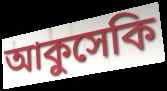
আকুসেকি